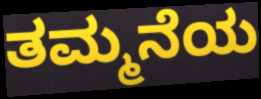
ತಮ್ಮನೆಯ